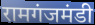
रामगंजमंडी